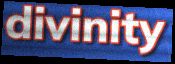
divinity